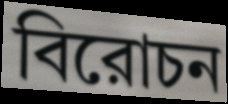
বিরোচন